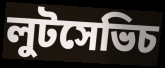
লুটসেভিচ